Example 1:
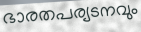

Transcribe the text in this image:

ഭാരതപര്യടനവും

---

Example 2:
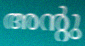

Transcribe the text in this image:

അന്റു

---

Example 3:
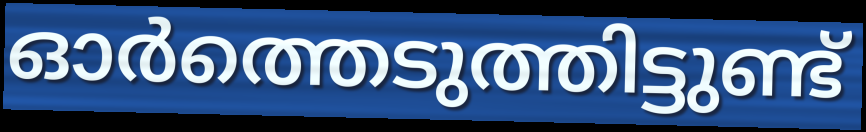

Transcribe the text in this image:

ഓർത്തെടുത്തിട്ടുണ്ട്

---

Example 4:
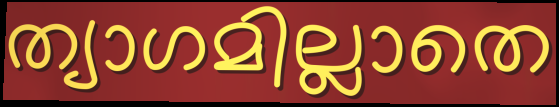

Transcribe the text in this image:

ത്യാഗമില്ലാതെ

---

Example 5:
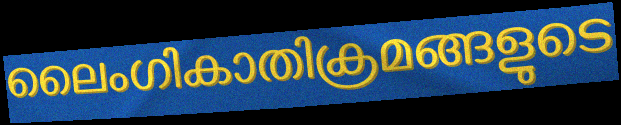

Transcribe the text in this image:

ലൈംഗികാതിക്രമങ്ങളുടെ